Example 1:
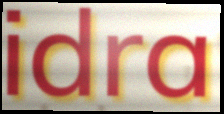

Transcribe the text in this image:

idra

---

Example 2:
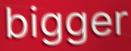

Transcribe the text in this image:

bigger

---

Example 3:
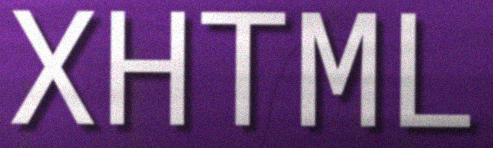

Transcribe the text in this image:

XHTML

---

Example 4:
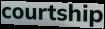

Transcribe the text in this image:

courtship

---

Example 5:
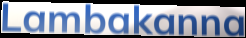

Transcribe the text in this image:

Lambakanna